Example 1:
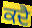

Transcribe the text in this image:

ਕਦੈ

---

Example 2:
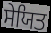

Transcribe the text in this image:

ਸੇਯਿਤ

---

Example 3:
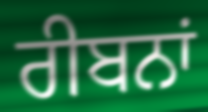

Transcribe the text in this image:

ਰੀਬਨਾਂ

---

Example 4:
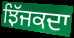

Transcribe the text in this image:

ਝਿੱਜਕਦਾ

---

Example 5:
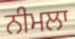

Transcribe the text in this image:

ਨੀਮਲਾ